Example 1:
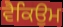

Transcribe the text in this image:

ਵੈਕਿਉਮ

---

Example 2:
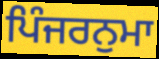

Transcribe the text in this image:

ਪਿੰਜਰਨੁਮਾ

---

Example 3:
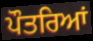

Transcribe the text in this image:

ਪੌਤਰਿਆਂ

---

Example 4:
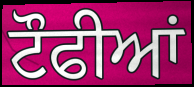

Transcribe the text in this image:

ਟੌਫੀਆਂ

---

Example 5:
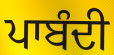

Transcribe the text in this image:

ਪਾਬੰਦੀ